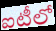
ఐటీలో